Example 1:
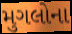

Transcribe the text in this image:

મુગલોના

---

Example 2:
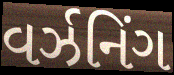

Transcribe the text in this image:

વર્ઝનિંગ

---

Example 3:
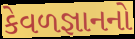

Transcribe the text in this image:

કેવળજ્ઞાનનો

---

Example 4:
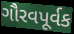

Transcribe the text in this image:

ગૌરવપૂર્વક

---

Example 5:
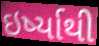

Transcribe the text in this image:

ઇર્ષ્યાથી